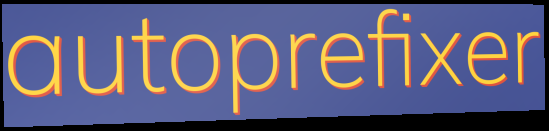
autoprefixer